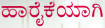
ಹಾರೈಕೆಯಾಗಿ